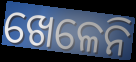
ଖେଳେନି